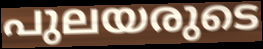
പുലയരുടെ